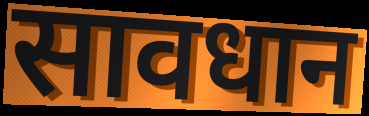
सावधान